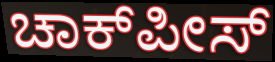
ಚಾಕ್‌ಪೀಸ್